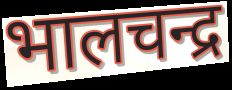
भालचन्द्र